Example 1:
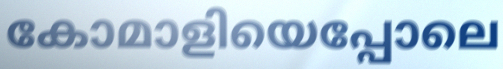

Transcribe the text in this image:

കോമാളിയെപ്പോലെ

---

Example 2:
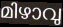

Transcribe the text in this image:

മിഴാവു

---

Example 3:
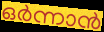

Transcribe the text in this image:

ഒർന്നാൻ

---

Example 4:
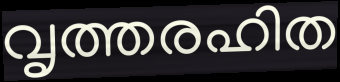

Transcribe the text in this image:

വൃത്തരഹിത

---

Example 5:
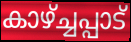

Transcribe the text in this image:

കാഴ്ച്ചപ്പാട്